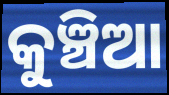
କୁଞ୍ଚିଆ